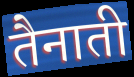
तैनाती